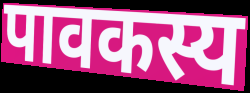
पावकस्य